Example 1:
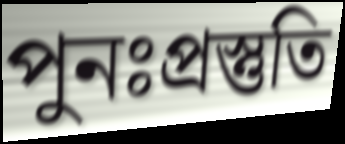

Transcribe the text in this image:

পুনঃপ্রস্তুতি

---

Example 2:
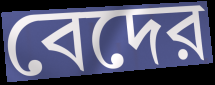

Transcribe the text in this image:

বেদের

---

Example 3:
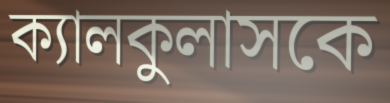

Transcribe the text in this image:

ক্যালকুলাসকে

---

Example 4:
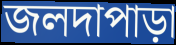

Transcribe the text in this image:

জলদাপাড়া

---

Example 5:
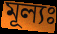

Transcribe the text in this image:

মূল্যঃ